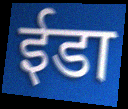
ईडा